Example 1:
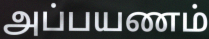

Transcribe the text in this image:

அப்பயணம்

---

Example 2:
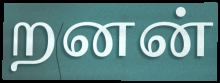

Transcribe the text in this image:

றனன்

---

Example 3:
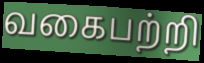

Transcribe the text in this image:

வகைபற்றி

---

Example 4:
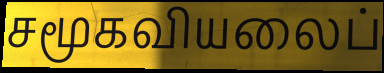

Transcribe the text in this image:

சமூகவியலைப்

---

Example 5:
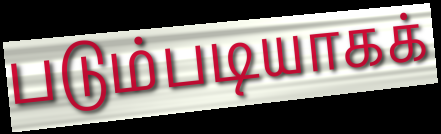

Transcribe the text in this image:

படும்படியாகக்